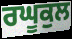
ਰਘੂਕੁਲ